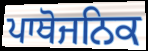
ਪਾਥੋਜਨਿਕ